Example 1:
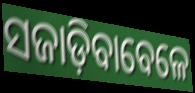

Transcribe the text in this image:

ସଜାଡ଼ିବାବେଳେ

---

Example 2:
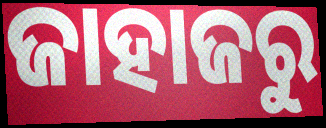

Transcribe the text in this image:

ଜାହାଜରୁ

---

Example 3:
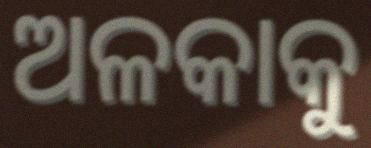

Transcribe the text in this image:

ଅଳକାକୁ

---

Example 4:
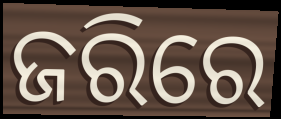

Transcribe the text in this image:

ଜରିରେ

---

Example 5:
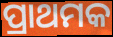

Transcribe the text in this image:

ପ୍ରାଥମକ